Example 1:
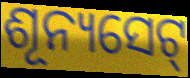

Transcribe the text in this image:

ଶୂନ୍ୟସେଟ୍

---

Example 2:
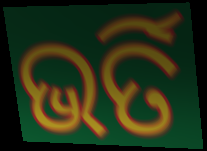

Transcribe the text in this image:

ଭର୍ତି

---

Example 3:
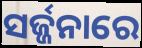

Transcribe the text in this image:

ସର୍ଜ୍ଜନାରେ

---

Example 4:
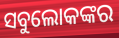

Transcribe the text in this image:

ସବୁଲୋକଙ୍କର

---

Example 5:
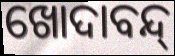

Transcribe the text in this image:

ଖୋଦାବନ୍ଦ୍